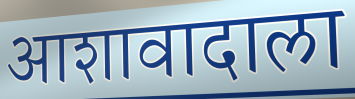
आशावादाला